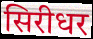
सिरीधर